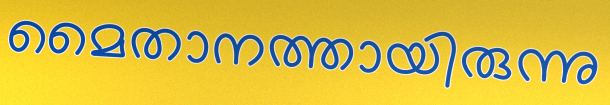
മൈതാനത്തായിരുന്നു